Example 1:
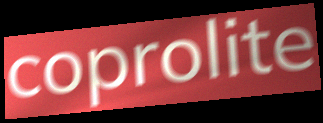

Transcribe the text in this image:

coprolite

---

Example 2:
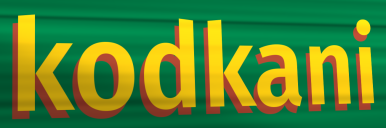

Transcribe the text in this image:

kodkani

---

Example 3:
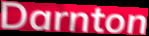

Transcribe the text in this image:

Darnton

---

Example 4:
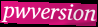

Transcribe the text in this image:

pwversion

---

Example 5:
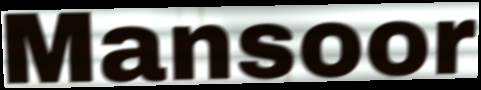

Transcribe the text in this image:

Mansoor